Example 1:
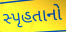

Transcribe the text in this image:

સ્પૃહતાનો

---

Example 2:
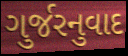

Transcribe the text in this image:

ગુર્જરનુવાદ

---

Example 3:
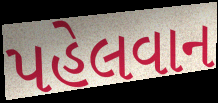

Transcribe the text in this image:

પહેલવાન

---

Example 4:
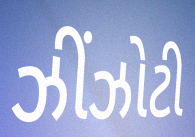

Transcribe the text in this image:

ઝીંઝોટી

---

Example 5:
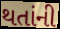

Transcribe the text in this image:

થતાંની